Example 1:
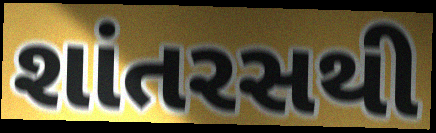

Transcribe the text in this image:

શાંતરસથી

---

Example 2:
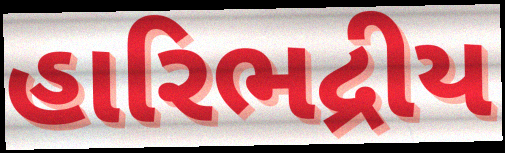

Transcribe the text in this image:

હારિભદ્રીય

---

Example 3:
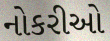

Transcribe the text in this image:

નોકરીઓ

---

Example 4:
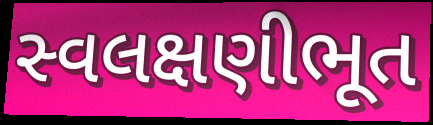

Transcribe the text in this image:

સ્વલક્ષણીભૂત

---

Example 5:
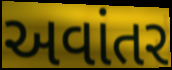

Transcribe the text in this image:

અવાંતર